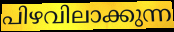
പിഴവിലാക്കുന്ന